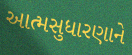
આત્મસુધારણાને